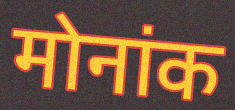
मोनांक